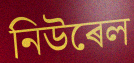
নিউৰেল